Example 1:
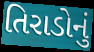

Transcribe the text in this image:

તિરાડોનું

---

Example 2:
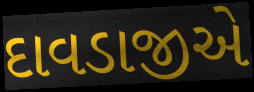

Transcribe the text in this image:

દાવડાજીએ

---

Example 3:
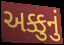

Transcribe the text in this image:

અક્કુનું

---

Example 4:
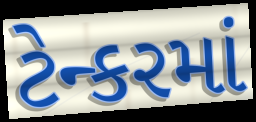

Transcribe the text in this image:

ટેન્કરમાં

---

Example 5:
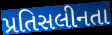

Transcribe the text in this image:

પ્રતિસલીનતા